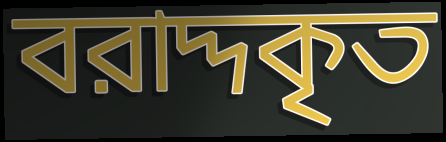
বরাদ্দকৃত